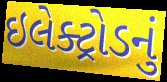
ઇલેક્ટ્રોડનું